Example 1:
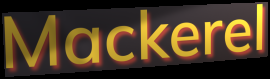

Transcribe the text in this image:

Mackerel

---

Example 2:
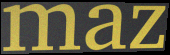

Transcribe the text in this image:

maz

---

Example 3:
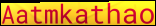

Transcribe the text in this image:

Aatmkathao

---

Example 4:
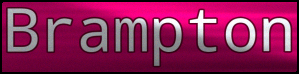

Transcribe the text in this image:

Brampton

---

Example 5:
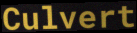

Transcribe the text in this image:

Culvert